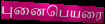
புனைபெயரை